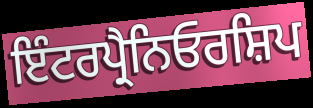
ਇੰਟਰਪ੍ਰੈਨਿਓਰਸ਼ਿਪ